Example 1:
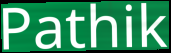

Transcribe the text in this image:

Pathik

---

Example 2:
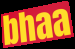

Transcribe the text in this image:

bhaa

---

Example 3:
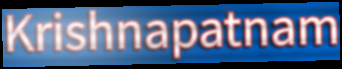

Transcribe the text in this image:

Krishnapatnam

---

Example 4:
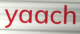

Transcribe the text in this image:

yaach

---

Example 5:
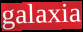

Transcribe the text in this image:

galaxia